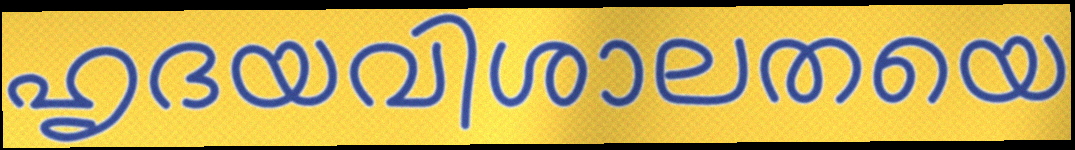
ഹൃദയവിശാലതയെ